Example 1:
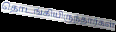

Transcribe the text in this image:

தொடங்கியிருந்தார்கள்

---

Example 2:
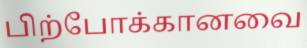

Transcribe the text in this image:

பிற்போக்கானவை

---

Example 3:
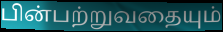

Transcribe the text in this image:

பின்பற்றுவதையும்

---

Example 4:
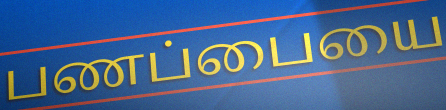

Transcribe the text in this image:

பணப்பையை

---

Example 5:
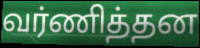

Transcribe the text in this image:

வர்ணித்தன